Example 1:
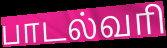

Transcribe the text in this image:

பாடல்வரி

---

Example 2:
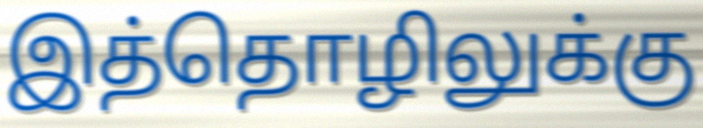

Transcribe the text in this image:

இத்தொழிலுக்கு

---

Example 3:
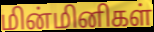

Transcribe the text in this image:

மின்மினிகள்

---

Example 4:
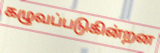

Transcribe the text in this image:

கழுவப்படுகின்றன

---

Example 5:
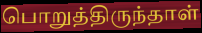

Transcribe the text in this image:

பொறுத்திருந்தாள்